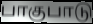
பாகுபாடு